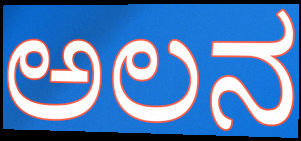
ಅಲನ